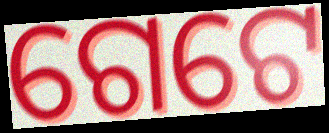
ଗେଟେ